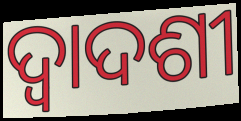
ଦ୍ବାଦଶୀ